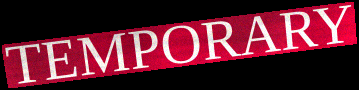
TEMPORARY